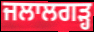
ਜਲਾਲਗੜ੍ਹ